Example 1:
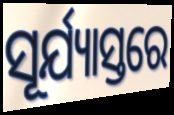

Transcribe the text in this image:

ସୂର୍ଯ୍ୟାସ୍ତରେ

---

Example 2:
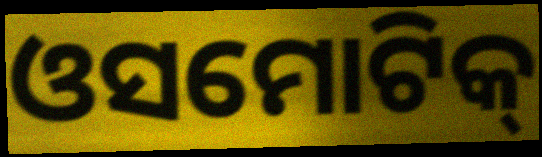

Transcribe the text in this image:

ଓସମୋଟିକ୍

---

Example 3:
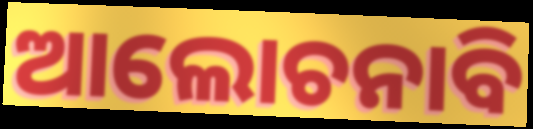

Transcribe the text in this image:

ଆଲୋଚନାବି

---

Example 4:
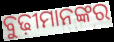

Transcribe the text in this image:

ବୁଢ଼ୀମାନଙ୍କର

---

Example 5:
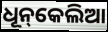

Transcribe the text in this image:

ଧୂନ୍‌କେଲିଆ